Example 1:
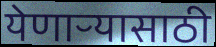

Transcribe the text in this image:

येणाऱ्यासाठी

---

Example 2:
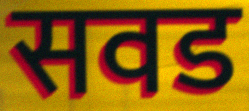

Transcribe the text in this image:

सवड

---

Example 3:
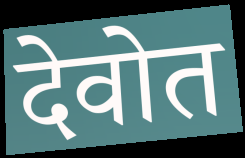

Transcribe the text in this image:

देवोत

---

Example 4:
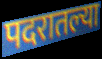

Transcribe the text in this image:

पदरातल्या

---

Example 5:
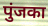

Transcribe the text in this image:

पुंजका